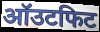
ऑउटफिट